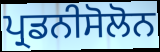
ਪ੍ਰਡਨੀਸੋਲੋਨ